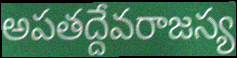
అపతద్దేవరాజస్య